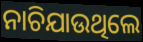
ନାଚିଯାଉଥିଲେ